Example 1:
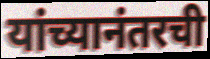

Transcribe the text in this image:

यांच्यानंतरची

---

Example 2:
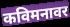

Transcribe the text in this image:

कविमनावर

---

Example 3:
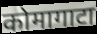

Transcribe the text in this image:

कोमागाटा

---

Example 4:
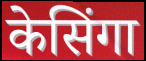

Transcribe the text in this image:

केसिंगा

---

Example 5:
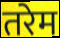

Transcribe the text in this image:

तरेम